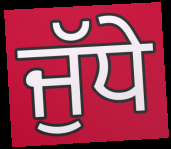
ਜੁੱਧੇ